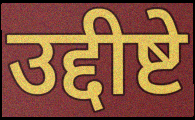
उद्दीष्टे